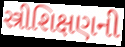
સ્ત્રીશિક્ષણની